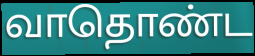
வாதொண்ட